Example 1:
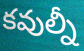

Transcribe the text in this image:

కవుల్నీ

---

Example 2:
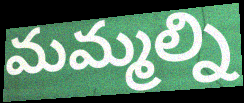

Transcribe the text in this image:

మమ్మల్ని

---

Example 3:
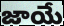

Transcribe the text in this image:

జాయే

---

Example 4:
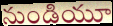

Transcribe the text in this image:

నుండియూ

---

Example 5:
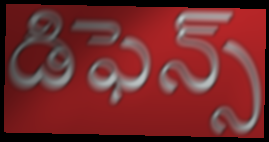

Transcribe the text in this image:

డిఫెన్స్